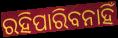
ରହିପାରିବନାହିଁ